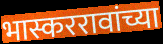
भास्कररावांच्या